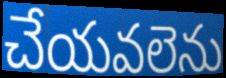
చేయవలెను